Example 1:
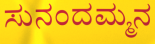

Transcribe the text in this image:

ಸುನಂದಮ್ಮನ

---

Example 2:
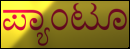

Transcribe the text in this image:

ಪ್ಯಾಂಟೂ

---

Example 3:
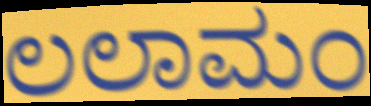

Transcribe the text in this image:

ಲಲಾಮಂ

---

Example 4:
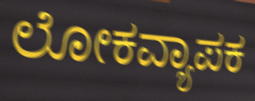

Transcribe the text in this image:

ಲೋಕವ್ಯಾಪಕ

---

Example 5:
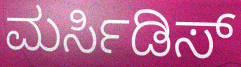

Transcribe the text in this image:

ಮರ್ಸಿಡಿಸ್